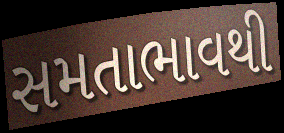
સમતાભાવથી